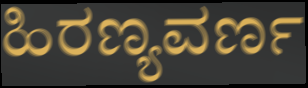
ಹಿರಣ್ಯವರ್ಣ